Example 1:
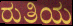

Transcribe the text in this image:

ರುತಿಯ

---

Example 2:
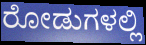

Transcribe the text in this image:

ರೋಡುಗಳಲ್ಲಿ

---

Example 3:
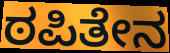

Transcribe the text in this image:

ಠಪಿತೇನ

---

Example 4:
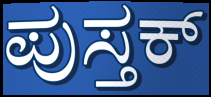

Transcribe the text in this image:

ಪುಸ್ತಕ್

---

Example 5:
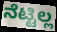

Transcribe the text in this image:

ನೆಟ್ಟಿಲ್ಲ